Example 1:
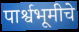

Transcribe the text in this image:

पार्श्वभूमीचे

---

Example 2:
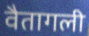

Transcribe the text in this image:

वैतागली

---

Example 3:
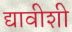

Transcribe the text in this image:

द्यावीशी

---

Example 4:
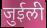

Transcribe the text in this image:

जुईली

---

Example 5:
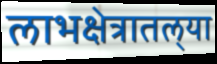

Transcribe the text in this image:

लाभक्षेत्रातल्या